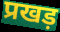
प्रखड़